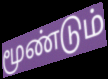
மூண்டும்